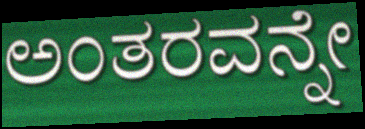
ಅಂತರವನ್ನೇ